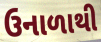
ઉનાળાથી